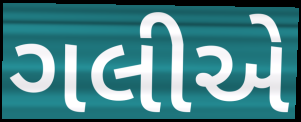
ગલીએ